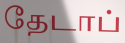
தேடாப்